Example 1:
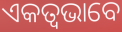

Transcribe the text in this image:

ଏକତ୍ଵଭାବେ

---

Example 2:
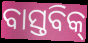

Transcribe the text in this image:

ବାସ୍ତବିକ୍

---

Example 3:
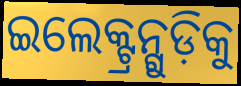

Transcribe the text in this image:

ଇଲେକ୍ଟ୍ରନ୍ଗୁଡ଼ିକୁ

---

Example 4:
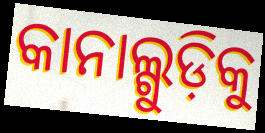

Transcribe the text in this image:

କାନାଲ୍ଗୁଡ଼ିକୁ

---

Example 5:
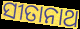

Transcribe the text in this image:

ସୀତାନାଥ